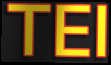
TEI